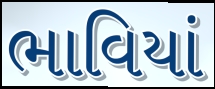
ભાવિયાં